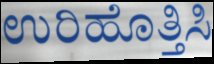
ಉರಿಹೊತ್ತಿಸಿ